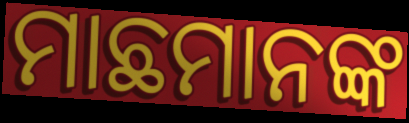
ମାଛମାନଙ୍କ